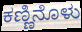
ಕಣ್ಣಿನೊಳು